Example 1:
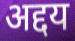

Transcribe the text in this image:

अद्दय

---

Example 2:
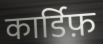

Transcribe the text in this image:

कार्डिफ़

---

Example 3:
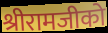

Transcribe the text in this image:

श्रीरामजीको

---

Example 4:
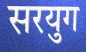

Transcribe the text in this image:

सरयुग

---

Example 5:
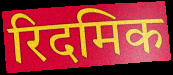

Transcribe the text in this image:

रिदमिक